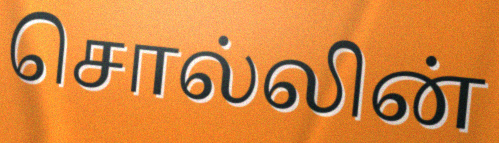
சொல்லின்